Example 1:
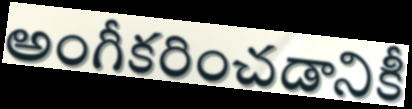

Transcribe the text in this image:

అంగీకరించడానికీ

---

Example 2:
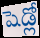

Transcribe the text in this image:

షెడ్లో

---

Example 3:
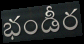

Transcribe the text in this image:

భండీర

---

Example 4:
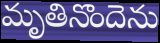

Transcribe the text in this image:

మృతినొందెను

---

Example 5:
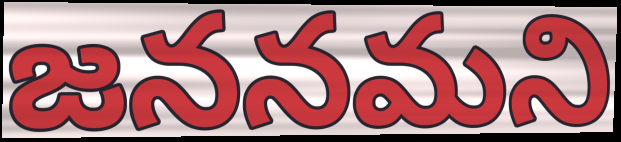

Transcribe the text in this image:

జననమని